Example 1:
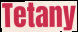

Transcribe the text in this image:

Tetany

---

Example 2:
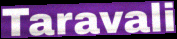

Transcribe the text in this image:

Taravali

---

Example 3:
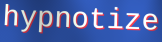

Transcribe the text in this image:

hypnotize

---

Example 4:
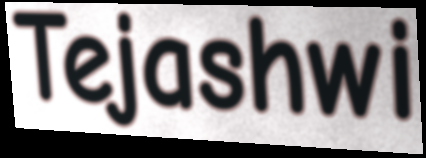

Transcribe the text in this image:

Tejashwi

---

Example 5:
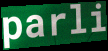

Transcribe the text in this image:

parli